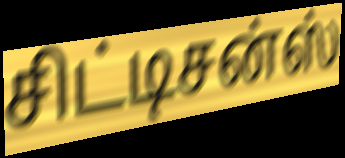
சிட்டிசன்ஸ்